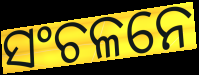
ସଂଚଳନେ